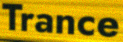
Trance